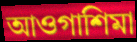
আওগাশিমা